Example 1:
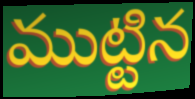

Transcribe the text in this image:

ముట్టిన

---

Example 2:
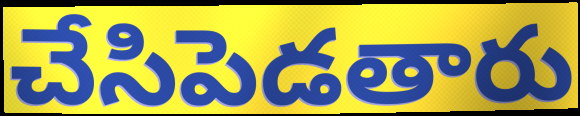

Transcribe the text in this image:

చేసిపెడతారు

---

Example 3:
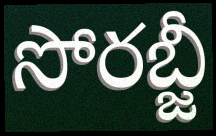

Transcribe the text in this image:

సోరబ్జీ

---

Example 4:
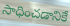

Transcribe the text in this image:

సాధించడానికే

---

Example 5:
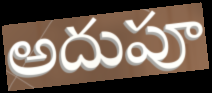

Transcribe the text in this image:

అదుపూ